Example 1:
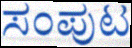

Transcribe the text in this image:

ಸಂಪುಟ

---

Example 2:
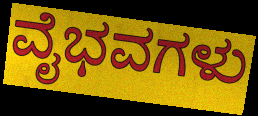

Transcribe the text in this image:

ವೈಭವಗಳು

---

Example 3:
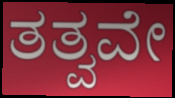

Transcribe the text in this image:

ತತ್ವವೇ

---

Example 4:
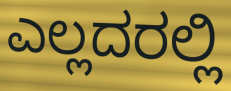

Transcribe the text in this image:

ಎಲ್ಲದರಲ್ಲಿ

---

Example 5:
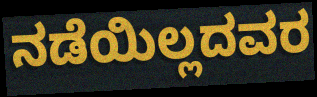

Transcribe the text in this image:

ನಡೆಯಿಲ್ಲದವರ